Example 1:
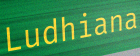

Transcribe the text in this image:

Ludhiana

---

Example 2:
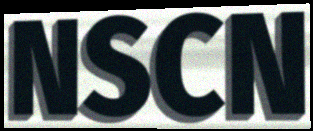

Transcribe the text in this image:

NSCN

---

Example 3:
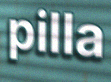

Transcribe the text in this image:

pilla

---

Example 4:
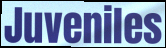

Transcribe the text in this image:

Juveniles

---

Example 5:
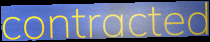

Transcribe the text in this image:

contracted